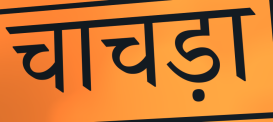
चाचड़ा